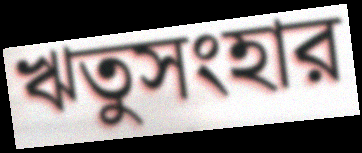
ঋতুসংহার